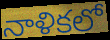
నాళికలో